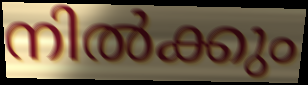
നിൽക്കും